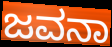
ಜವನಾ